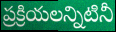
ప్రక్రియలన్నిటినీ